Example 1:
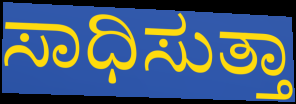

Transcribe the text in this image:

ಸಾಧಿಸುತ್ತಾ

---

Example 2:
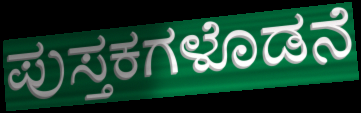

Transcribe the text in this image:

ಪುಸ್ತಕಗಳೊಡನೆ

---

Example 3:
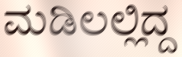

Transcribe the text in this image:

ಮಡಿಲಲ್ಲಿದ್ದ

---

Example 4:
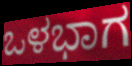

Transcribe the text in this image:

ಒಳಭಾಗ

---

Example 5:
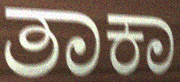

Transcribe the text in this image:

ತಾಕಾ